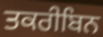
ਤਕਰੀਬਿਨ